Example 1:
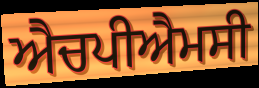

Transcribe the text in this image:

ਐਚਪੀਐਮਸੀ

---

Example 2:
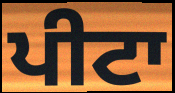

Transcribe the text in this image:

ਪੀਟਾ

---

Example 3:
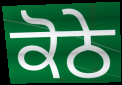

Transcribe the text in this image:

ਕੋਠੇ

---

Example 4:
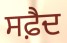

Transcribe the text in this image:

ਸਫ਼ੈਦ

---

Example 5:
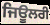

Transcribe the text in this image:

ਜਿਊਲਰੀ